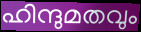
ഹിന്ദുമതവും